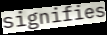
signifies